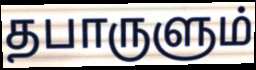
தபாருளும்